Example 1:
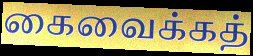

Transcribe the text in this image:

கைவைக்கத்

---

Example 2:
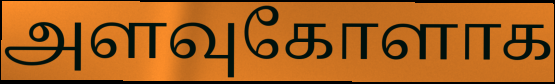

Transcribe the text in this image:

அளவுகோளாக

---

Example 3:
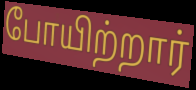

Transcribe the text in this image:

போயிற்றார்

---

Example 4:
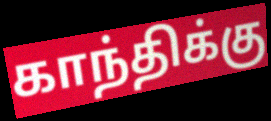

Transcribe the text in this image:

காந்திக்கு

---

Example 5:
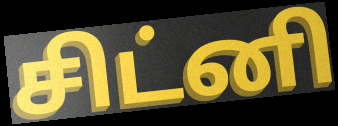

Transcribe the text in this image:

சிட்னி